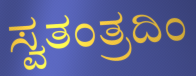
ಸ್ವತಂತ್ರದಿಂ